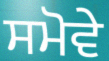
ਸਮੋਵੇ